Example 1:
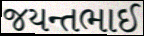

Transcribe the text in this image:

જયન્તભાઈ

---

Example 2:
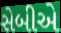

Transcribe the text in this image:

સેબીએ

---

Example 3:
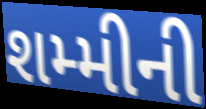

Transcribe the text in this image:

શમ્મીની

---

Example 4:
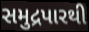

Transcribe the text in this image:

સમુદ્રપારથી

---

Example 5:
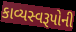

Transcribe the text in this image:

કાવ્યસ્વરૂપોની